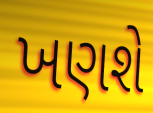
ખણશે